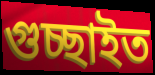
গুচ্ছাইত